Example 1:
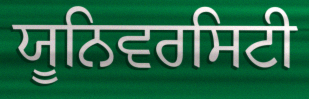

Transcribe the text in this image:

ਯੂਨਿਵਰਸਿਟੀ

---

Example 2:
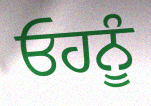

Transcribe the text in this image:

ਓਹਨੂੰ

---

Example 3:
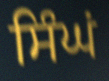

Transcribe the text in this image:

ਸਿੰਘਂ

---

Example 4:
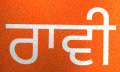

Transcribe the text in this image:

ਰਾਵੀ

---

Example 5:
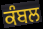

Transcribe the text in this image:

ਕੰਬਲ